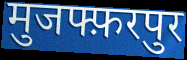
मुजफ्फ़रपुर